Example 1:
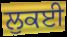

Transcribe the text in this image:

ਲੁਕਈ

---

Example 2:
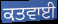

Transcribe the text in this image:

ਕਤਵਾਈ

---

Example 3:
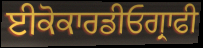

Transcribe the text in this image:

ਈਕੋਕਾਰਡੀਓਗ੍ਰਾਫੀ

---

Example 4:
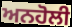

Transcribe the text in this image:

ਅਨਹੋਲੀ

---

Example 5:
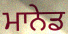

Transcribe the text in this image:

ਮਾਨੇਡ